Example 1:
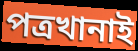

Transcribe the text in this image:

পত্রখানাই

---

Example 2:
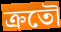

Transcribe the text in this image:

ক্রতৌ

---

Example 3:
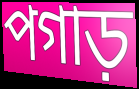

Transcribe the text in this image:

পগাড়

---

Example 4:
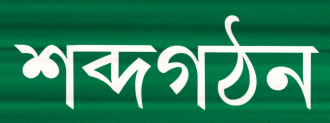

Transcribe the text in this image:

শব্দগঠন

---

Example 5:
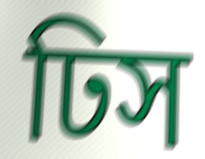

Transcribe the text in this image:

ঢিস